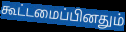
கூட்டமைப்பினதும்